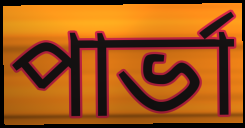
পার্ভা